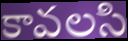
కావలసి